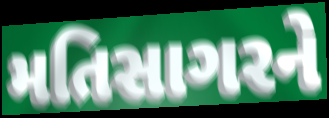
મતિસાગરને